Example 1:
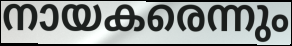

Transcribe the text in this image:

നായകരെന്നും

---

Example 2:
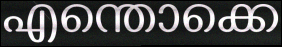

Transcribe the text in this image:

എന്തൊക്കെ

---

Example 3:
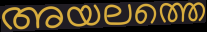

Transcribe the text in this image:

അയലത്തെ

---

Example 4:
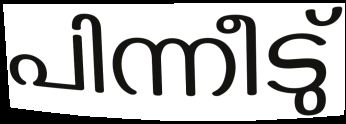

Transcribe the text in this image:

പിന്നീടു്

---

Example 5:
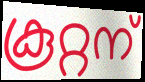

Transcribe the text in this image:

കൂറ്റന്